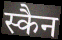
स्कैन